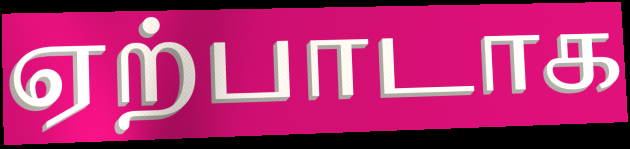
ஏற்பாடாக